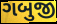
ગબુજી